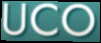
UCO